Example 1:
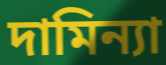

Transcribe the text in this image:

দামিন্যা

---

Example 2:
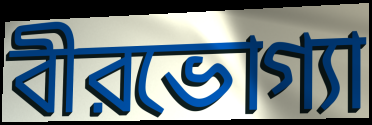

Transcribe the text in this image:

বীরভোগ্যা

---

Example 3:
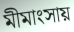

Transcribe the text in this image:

মীমাংসায়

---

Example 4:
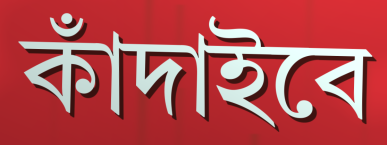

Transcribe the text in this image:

কাঁদাইবে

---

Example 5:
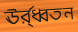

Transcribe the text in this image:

ঊর্র্ধ্বতন